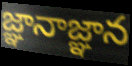
జ్ఞానాజ్ఞాన